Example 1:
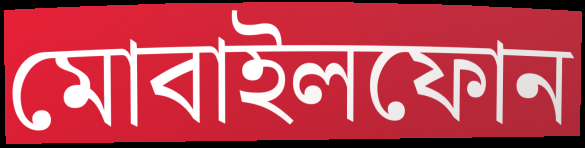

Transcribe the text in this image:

মোবাইলফোন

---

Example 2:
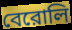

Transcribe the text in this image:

বেরোলি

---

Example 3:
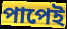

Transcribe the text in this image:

পাপেই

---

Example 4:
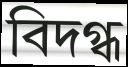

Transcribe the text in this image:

বিদগ্ধ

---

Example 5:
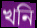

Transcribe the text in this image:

খনি